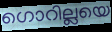
ഗൊറില്ലയെ